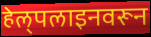
हेल्पलाइनवरून